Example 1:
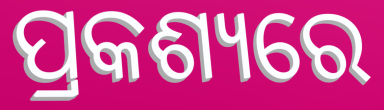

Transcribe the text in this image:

ପ୍ରକଶ୍ୟରେ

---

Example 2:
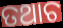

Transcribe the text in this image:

ତଥାଚ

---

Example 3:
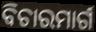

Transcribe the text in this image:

ବିଚାରମାର୍ଗ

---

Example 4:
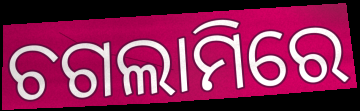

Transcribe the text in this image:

ଚଗଲାମିରେ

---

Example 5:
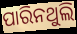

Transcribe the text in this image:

ପାରିନଥୁଲି